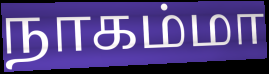
நாகம்மா